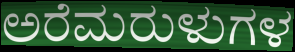
ಅರೆಮರುಳುಗಳ